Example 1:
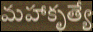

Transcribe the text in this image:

మహాకృత్యే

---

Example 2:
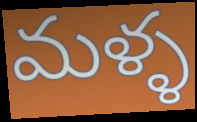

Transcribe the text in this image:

మళ్ళ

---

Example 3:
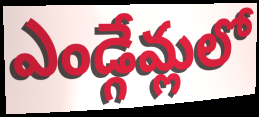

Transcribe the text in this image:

ఎండ్గేమ్లలో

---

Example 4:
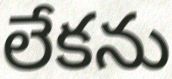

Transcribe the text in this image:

లేకను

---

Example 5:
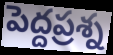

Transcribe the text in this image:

పెద్దప్రశ్న